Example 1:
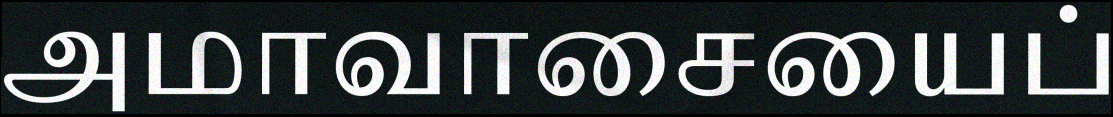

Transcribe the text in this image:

அமாவாசையைப்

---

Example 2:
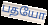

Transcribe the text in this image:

பதயோ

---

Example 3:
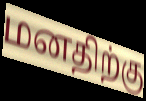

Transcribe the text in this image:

மனதிற்கு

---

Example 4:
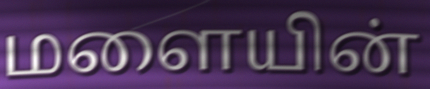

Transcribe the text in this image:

மளையின்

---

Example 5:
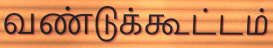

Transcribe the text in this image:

வண்டுக்கூட்டம்